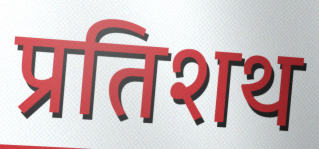
प्रतिशथ